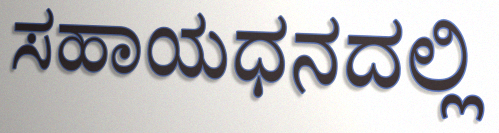
ಸಹಾಯಧನದಲ್ಲಿ